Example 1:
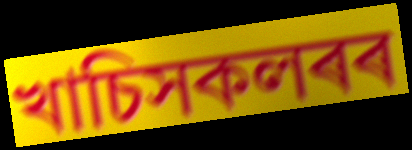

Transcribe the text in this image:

খাচিসকলৰৰ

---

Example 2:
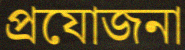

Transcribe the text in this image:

প্ৰযোজনা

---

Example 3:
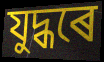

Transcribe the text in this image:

যুদ্ধৰে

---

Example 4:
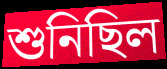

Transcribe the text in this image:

শুনিছিল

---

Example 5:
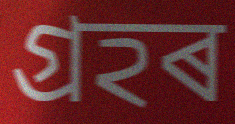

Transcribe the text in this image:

গ্ৰহৰ